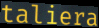
taliera